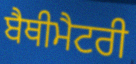
ਬੈਥੀਮੈਟਰੀ